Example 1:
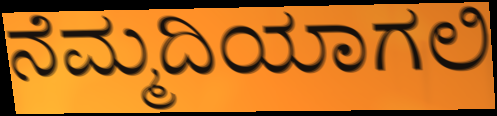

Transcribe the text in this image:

ನೆಮ್ಮದಿಯಾಗಲಿ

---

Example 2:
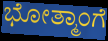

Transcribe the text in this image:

ಭೋತ್ಮಾಂಗೆ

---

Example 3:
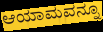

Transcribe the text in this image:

ಆಯಾಮವನ್ನೂ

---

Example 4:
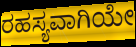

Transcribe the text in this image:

ರಹಸ್ಯವಾಗಿಯೇ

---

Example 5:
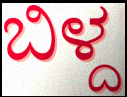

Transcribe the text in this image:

ಬಿಳ್ದ